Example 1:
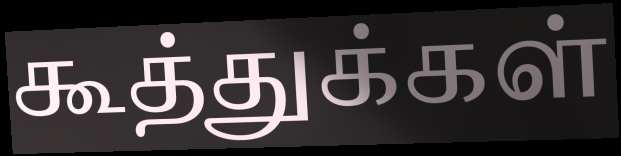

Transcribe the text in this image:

கூத்துக்கள்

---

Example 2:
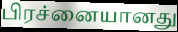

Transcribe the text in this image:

பிரச்னையானது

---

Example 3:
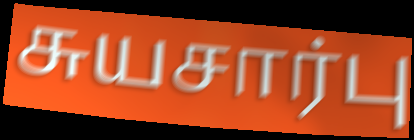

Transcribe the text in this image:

சுயசார்பு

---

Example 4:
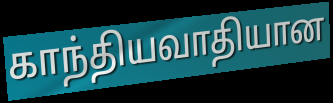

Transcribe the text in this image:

காந்தியவாதியான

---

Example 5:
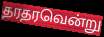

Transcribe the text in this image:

தரதரவென்று